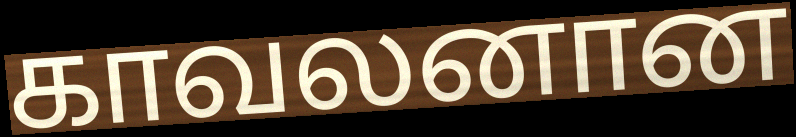
காவலனான